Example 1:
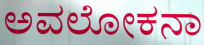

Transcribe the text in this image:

ಅವಲೋಕನಾ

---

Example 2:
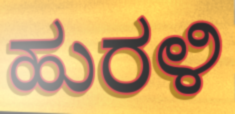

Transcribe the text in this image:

ಹುರಳಿ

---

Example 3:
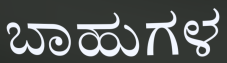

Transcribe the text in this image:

ಬಾಹುಗಳ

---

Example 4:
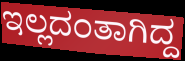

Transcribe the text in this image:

ಇಲ್ಲದಂತಾಗಿದ್ದ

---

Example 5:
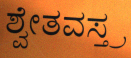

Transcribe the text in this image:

ಶ್ವೇತವಸ್ತ್ರ